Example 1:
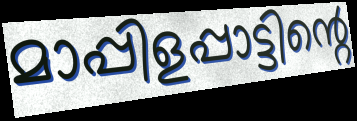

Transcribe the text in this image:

മാപ്പിളപ്പാട്ടിന്റെ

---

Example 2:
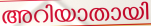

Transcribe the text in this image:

അറിയാതായി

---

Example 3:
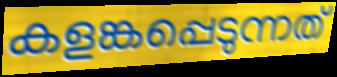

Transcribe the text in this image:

കളങ്കപ്പെടുന്നത്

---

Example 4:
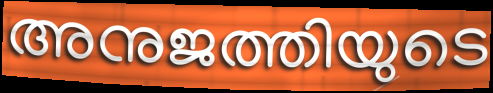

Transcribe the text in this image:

അനുജത്തിയുടെ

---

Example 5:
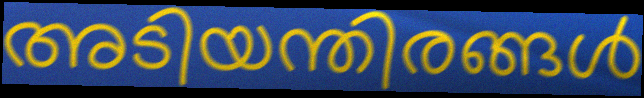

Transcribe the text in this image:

അടിയന്തിരങ്ങൾ